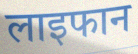
लाइफान